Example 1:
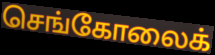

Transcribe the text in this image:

செங்கோலைக்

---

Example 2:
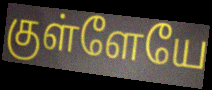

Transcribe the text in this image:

குள்ளேயே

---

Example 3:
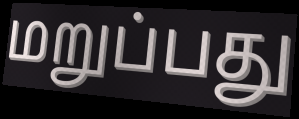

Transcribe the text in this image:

மறுப்பது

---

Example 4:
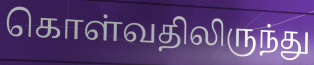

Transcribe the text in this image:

கொள்வதிலிருந்து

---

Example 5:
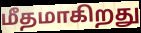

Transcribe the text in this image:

மீதமாகிறது